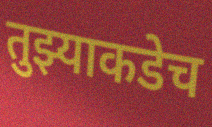
तुझ्याकडेच